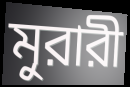
মুরারী